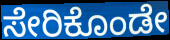
ಸೇರಿಕೊಂಡೇ